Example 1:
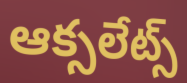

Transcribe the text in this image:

ఆక్సలేట్స్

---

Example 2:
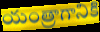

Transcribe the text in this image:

యంత్రాగానికి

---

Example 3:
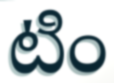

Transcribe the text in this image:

టిం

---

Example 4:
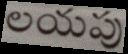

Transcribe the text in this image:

లయపు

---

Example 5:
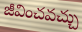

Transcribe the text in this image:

జీవించవచ్చు